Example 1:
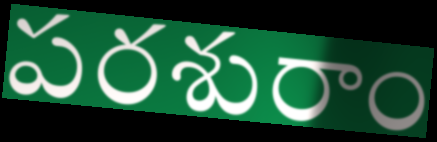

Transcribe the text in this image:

పరశురాం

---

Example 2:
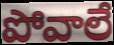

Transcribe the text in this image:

పోవాలే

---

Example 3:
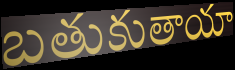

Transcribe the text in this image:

బతుకుతాయా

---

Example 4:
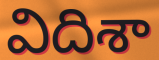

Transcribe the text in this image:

విదిశా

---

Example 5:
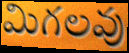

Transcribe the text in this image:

మిగలవు